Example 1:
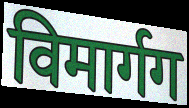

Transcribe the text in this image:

विमार्गग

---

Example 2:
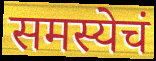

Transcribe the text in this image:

समस्येचं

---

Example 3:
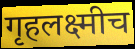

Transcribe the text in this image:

गृहलक्ष्मीच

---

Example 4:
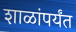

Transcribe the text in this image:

शाळांपर्यंत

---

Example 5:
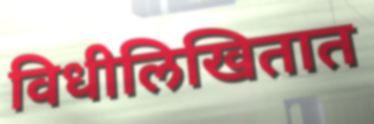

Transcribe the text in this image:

विधीलिखितात